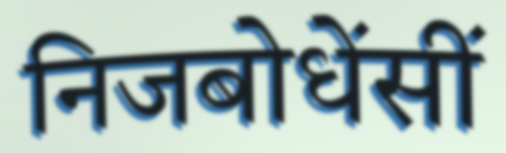
निजबोधेंसीं